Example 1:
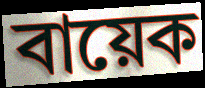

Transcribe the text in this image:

বায়েক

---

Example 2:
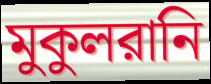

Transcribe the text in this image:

মুকুলরানি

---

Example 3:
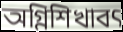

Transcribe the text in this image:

অগ্নিশিখাবৎ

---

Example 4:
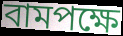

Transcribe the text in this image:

বামপক্ষে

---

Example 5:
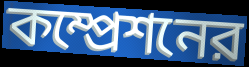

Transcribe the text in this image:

কম্প্রেশনের